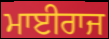
ਮਾਈਰਾਜ